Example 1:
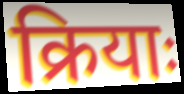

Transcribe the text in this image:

क्रियाः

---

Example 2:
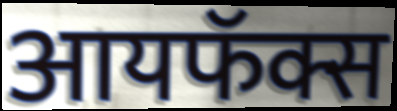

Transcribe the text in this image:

आयफॅक्स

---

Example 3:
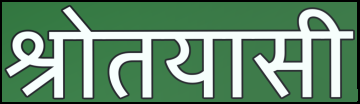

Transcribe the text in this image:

श्रोतयासी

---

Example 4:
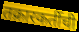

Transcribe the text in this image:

तक्रारकर्तीची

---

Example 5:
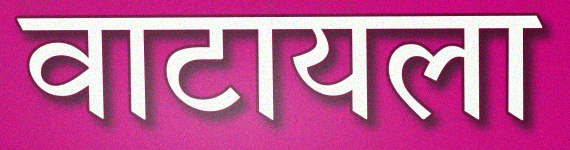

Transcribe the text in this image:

वाटायला